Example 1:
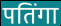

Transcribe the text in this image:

पतिंगा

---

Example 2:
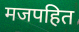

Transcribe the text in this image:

मजपहित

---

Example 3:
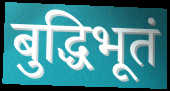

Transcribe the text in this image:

बुद्धिभूतं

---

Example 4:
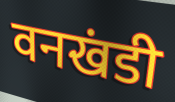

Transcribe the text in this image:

वनखंडी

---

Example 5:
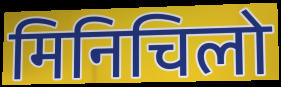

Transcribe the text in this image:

मिनिचिलो